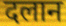
दलान